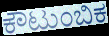
ಕೌಟುಂಬಿಕ